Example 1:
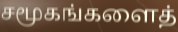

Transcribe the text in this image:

சமூகங்களைத்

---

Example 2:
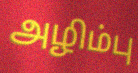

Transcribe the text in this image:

அழிம்பு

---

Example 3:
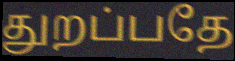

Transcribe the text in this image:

துறப்பதே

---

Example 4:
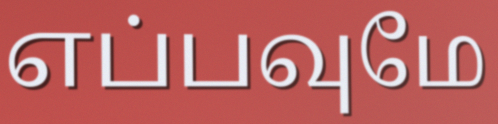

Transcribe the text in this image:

எப்பவுமே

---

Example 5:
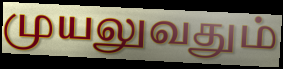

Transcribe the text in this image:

முயலுவதும்